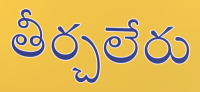
తీర్చలేరు